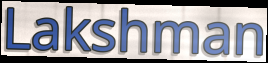
Lakshman